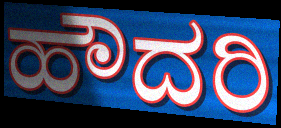
ಹೌದರಿ